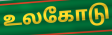
உலகோடு